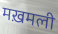
मख़मली